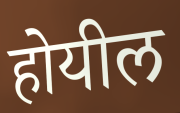
होयील